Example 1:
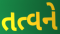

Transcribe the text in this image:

તત્વને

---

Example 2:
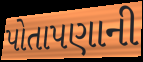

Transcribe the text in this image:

પોતાપણાની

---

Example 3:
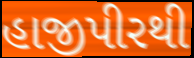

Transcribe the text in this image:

હાજીપીરથી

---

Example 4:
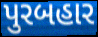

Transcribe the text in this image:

પુરબહાર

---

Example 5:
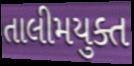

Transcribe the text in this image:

તાલીમયુક્ત